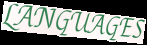
LANGUAGES